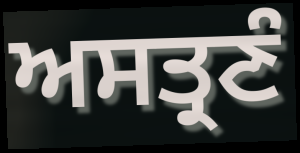
ਅਸਤ੍ਰਣੰ